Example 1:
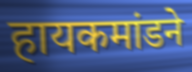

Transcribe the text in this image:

हायकमांडने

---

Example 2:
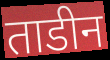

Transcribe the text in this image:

ताडीन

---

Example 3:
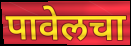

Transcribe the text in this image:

पावेलचा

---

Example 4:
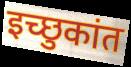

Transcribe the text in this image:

इच्छुकांत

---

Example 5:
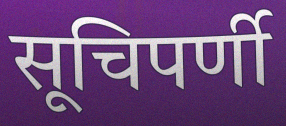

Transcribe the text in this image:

सूचिपर्णी